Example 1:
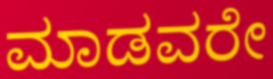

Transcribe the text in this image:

ಮಾಡವರೇ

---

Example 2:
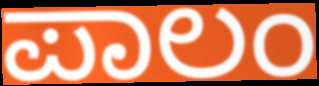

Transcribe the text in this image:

ಪಾಲಂ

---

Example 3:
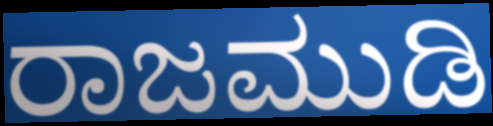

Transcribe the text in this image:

ರಾಜಮುಡಿ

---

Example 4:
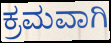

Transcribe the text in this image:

ಕ್ರಮವಾಗಿ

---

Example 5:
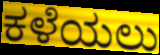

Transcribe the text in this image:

ಕಳೆಯಲು